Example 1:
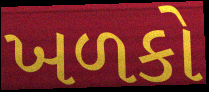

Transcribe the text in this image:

ખળકો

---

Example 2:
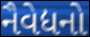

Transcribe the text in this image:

નૈવેદ્યનો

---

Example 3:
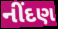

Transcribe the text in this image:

નીંદણ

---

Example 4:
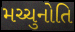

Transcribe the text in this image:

મચ્ચુનોતિ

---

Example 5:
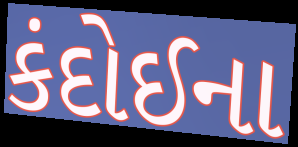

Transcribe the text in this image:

કંદોઈના